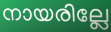
നായരില്ലേ